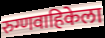
रुग्णवाहिकेला